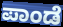
ಪಾಂಡೆ